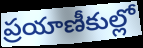
ప్రయాణీకుల్లో